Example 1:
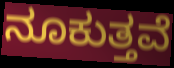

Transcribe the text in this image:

ನೂಕುತ್ತವೆ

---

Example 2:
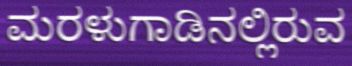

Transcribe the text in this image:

ಮರಳುಗಾಡಿನಲ್ಲಿರುವ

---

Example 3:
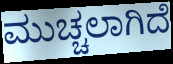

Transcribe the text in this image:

ಮುಚ್ಚಲಾಗಿದೆ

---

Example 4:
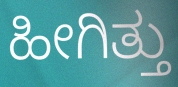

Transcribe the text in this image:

ಹೀಗಿತ್ತು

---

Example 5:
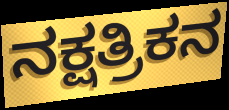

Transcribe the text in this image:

ನಕ್ಷತ್ರಿಕನ